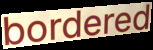
bordered